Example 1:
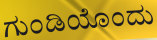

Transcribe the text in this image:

ಗುಂಡಿಯೊಂದು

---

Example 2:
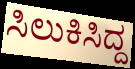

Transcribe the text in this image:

ಸಿಲುಕಿಸಿದ್ದ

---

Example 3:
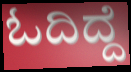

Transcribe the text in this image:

ಓದಿದ್ದೆ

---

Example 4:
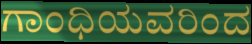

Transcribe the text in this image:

ಗಾಂಧಿಯವರಿಂದ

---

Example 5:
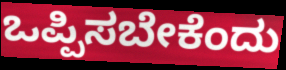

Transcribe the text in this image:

ಒಪ್ಪಿಸಬೇಕೆಂದು